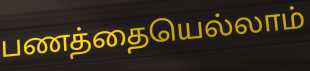
பணத்தையெல்லாம்